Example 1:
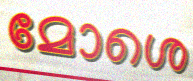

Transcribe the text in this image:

മോശെ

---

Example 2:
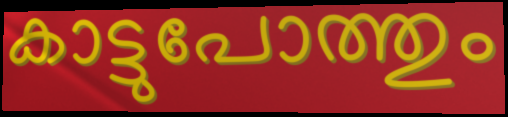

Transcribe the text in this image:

കാട്ടുപോത്തും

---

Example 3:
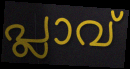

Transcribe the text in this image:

പ്ലാവ്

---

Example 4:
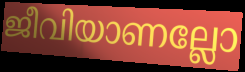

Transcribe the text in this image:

ജീവിയാണല്ലോ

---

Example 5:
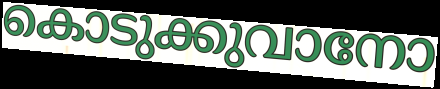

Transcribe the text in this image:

കൊടുക്കുവാനോ